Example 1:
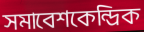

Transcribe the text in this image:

সমাবেশকেন্দ্রিক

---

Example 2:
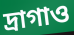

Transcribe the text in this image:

দ্রাগাও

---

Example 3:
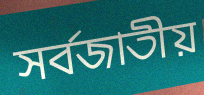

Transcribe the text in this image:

সর্বজাতীয়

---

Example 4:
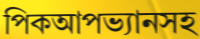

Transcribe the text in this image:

পিকআপভ্যানসহ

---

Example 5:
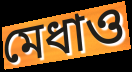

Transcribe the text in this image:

মেধাও